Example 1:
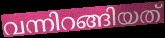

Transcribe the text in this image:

വന്നിറങ്ങിയത്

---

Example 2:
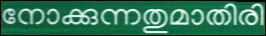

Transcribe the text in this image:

നോക്കുന്നതുമാതിരി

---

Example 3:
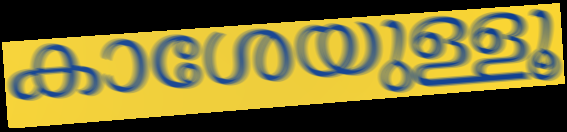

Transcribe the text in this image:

കാശേയുള്ളൂ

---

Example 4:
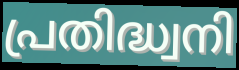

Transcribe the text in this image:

പ്രതിദ്ധ്വനി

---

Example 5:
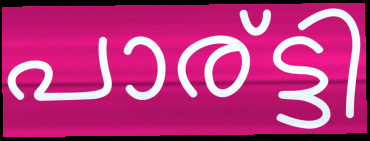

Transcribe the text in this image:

പാര്ട്ടി